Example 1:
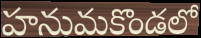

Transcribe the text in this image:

హనుమకొండలో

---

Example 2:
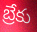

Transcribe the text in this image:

బ్రేకు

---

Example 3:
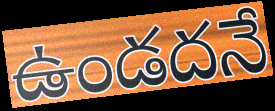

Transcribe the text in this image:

ఉండదనే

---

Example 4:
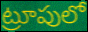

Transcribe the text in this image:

ట్రూపులో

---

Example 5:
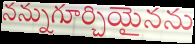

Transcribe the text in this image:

నన్నుగూర్చియైనను